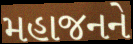
મહાજનને